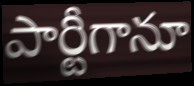
పార్టీగానూ